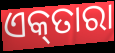
ଏକ୍‌ତାରା